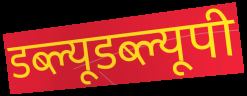
डब्ल्यूडब्ल्यूपी